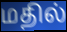
மதில்